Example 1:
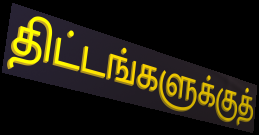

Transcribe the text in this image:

திட்டங்களுக்குத்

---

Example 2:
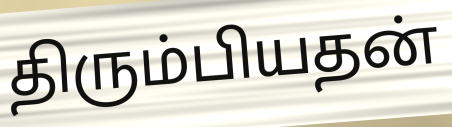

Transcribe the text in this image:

திரும்பியதன்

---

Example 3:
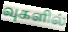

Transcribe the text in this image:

வுகளில்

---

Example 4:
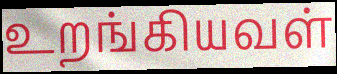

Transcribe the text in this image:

உறங்கியவள்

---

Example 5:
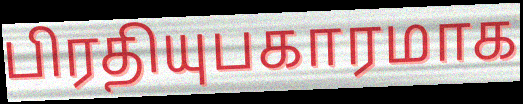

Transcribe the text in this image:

பிரதியுபகாரமாக